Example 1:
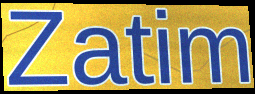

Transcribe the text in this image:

Zatim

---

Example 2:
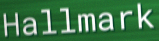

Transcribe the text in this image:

Hallmark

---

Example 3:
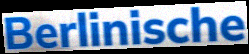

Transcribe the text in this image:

Berlinische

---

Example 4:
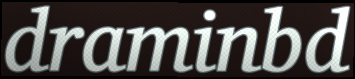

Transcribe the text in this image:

draminbd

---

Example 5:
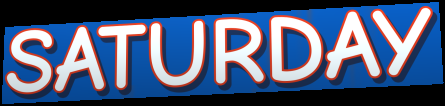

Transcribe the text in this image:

SATURDAY